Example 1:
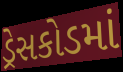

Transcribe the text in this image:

ડ્રેસકોડમાં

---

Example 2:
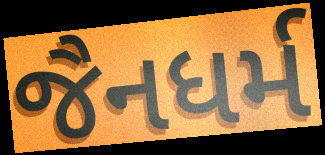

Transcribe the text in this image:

જૈનધર્મ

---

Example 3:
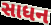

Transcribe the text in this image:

સાધન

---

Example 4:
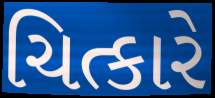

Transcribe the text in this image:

ચિત્કારે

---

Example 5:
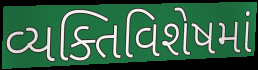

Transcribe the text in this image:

વ્યક્તિવિશેષમાં